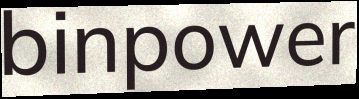
binpower